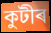
কুটীৰ